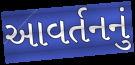
આવર્તનનું